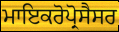
ਮਾਇਕਰੋਪ੍ਰੋਸੈਸਰ